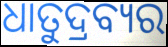
ଧାତୁଦ୍ରବ୍ୟର